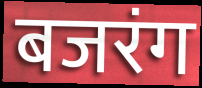
बजरंग